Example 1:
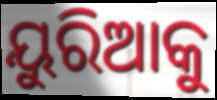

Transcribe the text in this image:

ୟୁରିଆକୁ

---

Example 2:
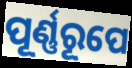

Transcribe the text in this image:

ପୂର୍ଣ୍ଣରୂପେ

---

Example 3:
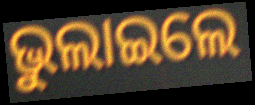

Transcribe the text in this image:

ଭୁଲାଇଲେ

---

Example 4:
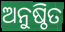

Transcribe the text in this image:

ଅନୁଷ୍ଠିତ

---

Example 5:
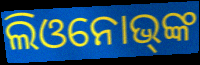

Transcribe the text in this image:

ଲିଓନୋଭ୍‌ଙ୍କ